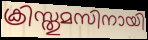
ക്രിസ്തുമസിനായി